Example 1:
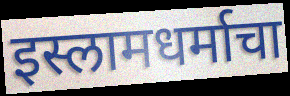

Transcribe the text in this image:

इस्लामधर्माचा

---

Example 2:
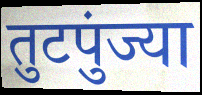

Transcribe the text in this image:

तुटपुंज्या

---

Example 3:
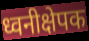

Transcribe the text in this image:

ध्वनीक्षेपक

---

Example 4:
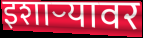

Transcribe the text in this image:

इशाऱ्यावर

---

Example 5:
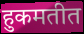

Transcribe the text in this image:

हुकमतीत